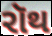
રૉથ